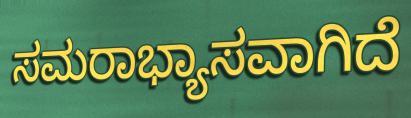
ಸಮರಾಭ್ಯಾಸವಾಗಿದೆ